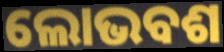
ଲୋଭବଶ